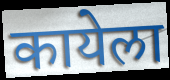
कायेला